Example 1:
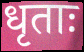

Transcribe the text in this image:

धृताः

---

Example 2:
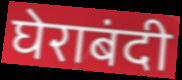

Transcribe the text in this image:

घेराबंदी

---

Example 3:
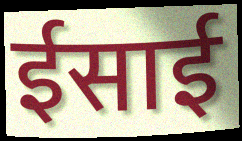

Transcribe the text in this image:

ईसाई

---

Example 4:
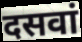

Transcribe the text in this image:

दसवां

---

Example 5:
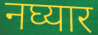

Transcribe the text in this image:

नघ्यार